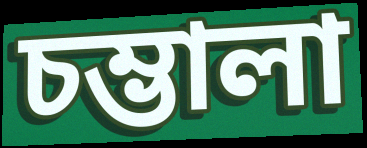
চম্ভালা